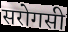
सरोगसी